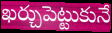
ఖర్చుపెట్టుకునే